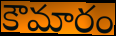
కౌమారం